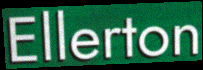
Ellerton